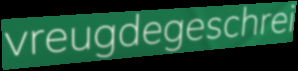
vreugdegeschrei